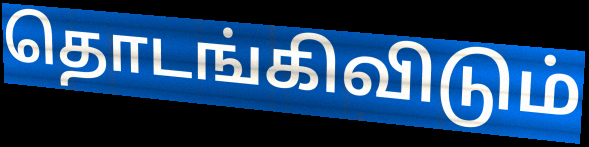
தொடங்கிவிடும்